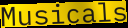
Musicals